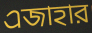
এজাহার